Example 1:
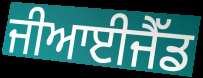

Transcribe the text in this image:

ਜੀਆਈਜੈੱਡ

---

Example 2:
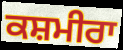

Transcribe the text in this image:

ਕਸ਼ਮੀਰਾ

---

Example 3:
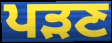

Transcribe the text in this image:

ਪੜਣ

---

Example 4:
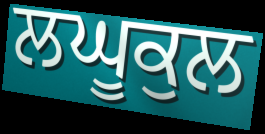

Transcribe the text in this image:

ਲਘੂਕੁਲ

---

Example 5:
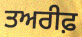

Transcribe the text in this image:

ਤਅਰੀਫ਼